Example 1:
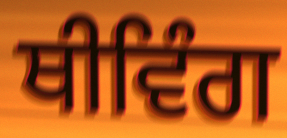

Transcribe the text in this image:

ਥੀਵਿੰਗ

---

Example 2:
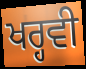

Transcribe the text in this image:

ਖਰ੍ਹਵੀ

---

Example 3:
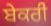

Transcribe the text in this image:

ਬੇਕਰੀ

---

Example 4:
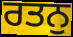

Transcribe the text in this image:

ਰਤਨੁ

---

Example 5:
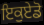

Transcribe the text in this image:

ਇਕੁਏਡੋ